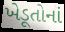
ખેડૂતોનાં